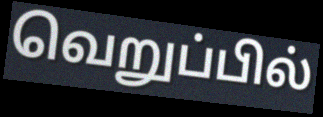
வெறுப்பில்